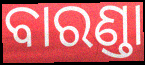
ବାରଣ୍ଡା